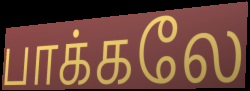
பாக்கலே